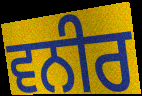
ਵਨੀਰ